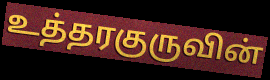
உத்தரகுருவின்